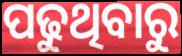
ପଢୁଥିବାରୁ